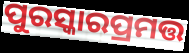
ପୁରସ୍କାରପ୍ରମତ୍ତ